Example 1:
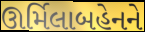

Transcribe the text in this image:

ઊર્મિલાબહેનને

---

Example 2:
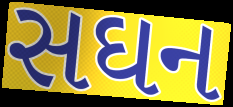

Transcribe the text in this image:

સઘન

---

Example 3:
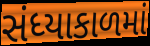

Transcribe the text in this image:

સંધ્યાકાળમાં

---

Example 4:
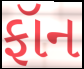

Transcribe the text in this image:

ફૉન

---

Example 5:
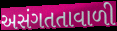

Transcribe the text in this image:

અસંગતતાવાળી